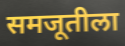
समजूतीला